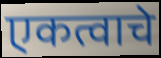
एकत्वाचे